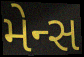
મેન્સ